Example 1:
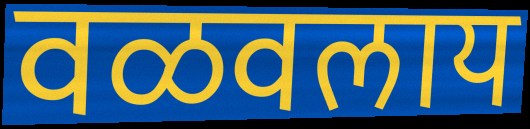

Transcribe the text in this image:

वळवलाय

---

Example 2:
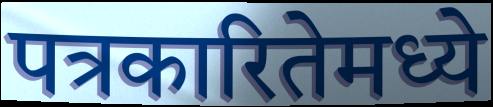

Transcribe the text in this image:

पत्रकारितेमध्ये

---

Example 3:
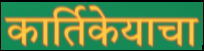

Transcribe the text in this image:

कार्तिकेयाचा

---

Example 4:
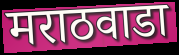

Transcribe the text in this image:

मराठवाडा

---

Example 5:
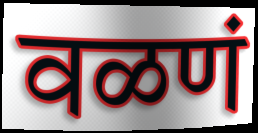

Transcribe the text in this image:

वळणं